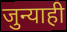
जुन्याही